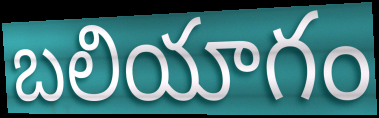
బలియాగం